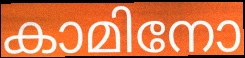
കാമിനോ